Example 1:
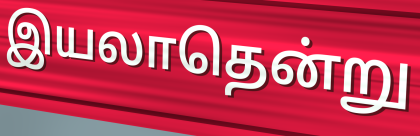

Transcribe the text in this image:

இயலாதென்று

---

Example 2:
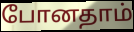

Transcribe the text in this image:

போனதாம்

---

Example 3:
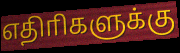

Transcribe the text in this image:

எதிரிகளுக்கு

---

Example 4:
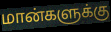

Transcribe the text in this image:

மான்களுக்கு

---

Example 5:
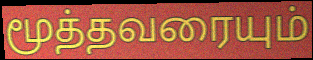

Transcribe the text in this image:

மூத்தவரையும்